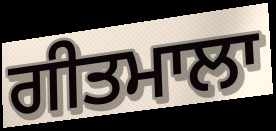
ਗੀਤਮਾਲਾ